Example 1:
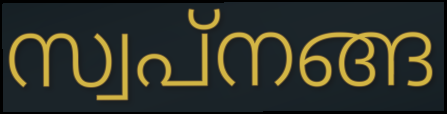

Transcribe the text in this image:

സ്വപ്നങ്ങ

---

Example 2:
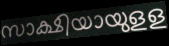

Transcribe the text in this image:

സാക്ഷിയായുളള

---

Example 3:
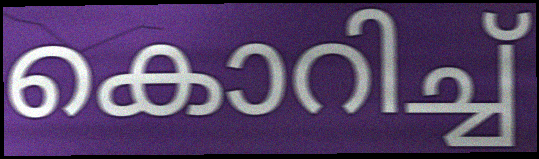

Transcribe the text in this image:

കൊറിച്ച്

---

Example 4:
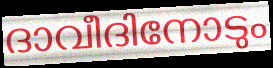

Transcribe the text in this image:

ദാവീദിനോടും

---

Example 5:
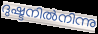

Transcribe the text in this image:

ദുഷ്ടനിൽനിന്നു